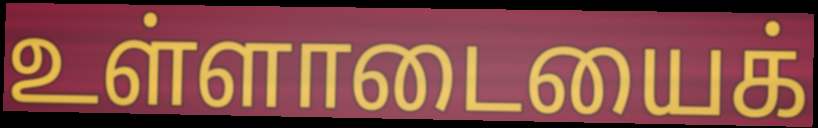
உள்ளாடையைக்